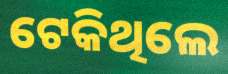
ଟେକିଥିଲେ